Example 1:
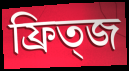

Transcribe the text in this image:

ফ্রিত্জ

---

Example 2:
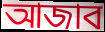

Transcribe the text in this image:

আজাব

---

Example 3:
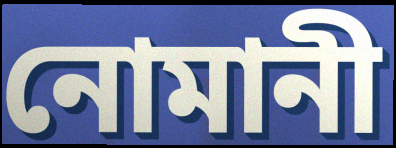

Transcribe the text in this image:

নোমানী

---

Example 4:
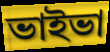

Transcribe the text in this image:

ভাইভা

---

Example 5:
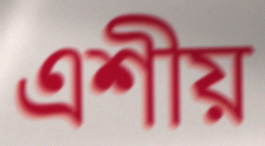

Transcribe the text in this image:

এশীয়